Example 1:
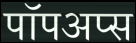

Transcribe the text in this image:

पॉपअप्स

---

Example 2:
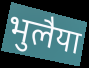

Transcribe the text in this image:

भुलैया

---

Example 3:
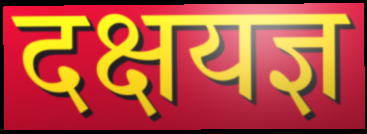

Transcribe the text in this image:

दक्षयज्ञ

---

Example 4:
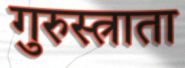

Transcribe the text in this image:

गुरुस्त्राता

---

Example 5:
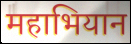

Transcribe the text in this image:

महाभियान